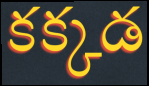
కక్కడ